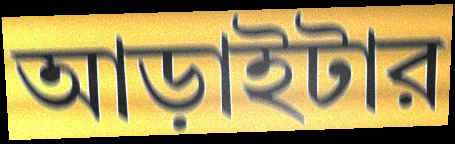
আড়াইটার